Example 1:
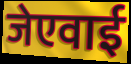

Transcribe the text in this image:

जेएवाई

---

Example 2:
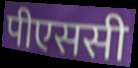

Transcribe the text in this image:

पीएससी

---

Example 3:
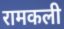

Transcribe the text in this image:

रामकली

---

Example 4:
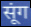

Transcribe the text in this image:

सूंग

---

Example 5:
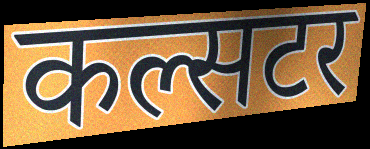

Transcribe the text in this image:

कल्सटर